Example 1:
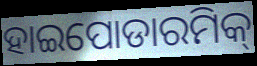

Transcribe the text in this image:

ହାଇପୋଡାରମିକ୍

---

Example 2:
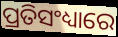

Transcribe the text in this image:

ପ୍ରତିସଂଧ୍ୟାରେ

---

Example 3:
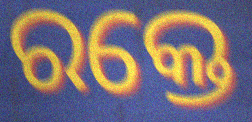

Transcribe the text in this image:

ରକ୍ତେ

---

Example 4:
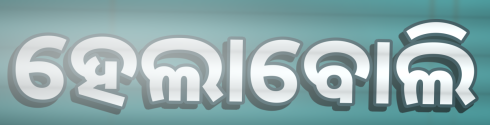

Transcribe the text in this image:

ହେଲାବୋଲି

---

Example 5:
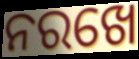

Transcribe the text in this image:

ନରଖେ